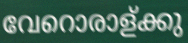
വേറൊരാള്ക്കു